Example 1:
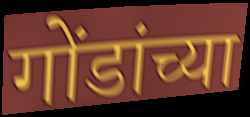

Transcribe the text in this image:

गोंडांच्या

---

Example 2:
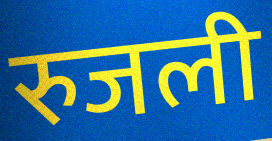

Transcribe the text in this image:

रुजली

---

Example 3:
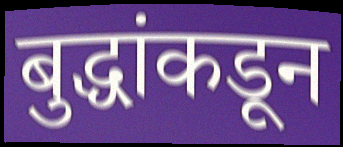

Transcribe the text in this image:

बुद्धांकडून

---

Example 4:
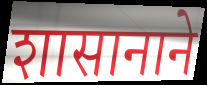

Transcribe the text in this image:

शासानाने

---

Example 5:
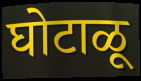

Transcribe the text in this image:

घोटाळू